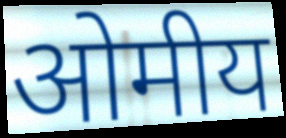
ओमीय